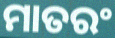
ମାତରଂ